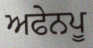
ਅਫੇਨਪੂ